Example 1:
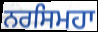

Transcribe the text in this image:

ਨਰਸਿਮਹਾ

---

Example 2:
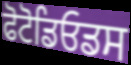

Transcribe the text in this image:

ਫੋਟੋਡਿਓਡਸ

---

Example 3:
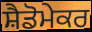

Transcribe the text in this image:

ਸ਼ੈਡੋਮੇਕਰ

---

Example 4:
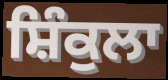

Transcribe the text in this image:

ਸ਼ਿੰਕੁਲਾ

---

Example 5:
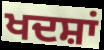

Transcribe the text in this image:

ਖਦਸ਼ਾਂ